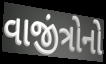
વાજીંત્રોનો